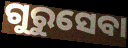
ଗୁରୁସେବା